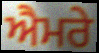
ਐਮਰੇ